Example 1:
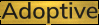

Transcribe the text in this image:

Adoptive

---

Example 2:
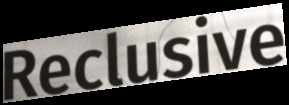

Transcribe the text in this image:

Reclusive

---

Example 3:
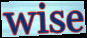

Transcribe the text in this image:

wise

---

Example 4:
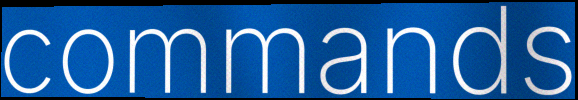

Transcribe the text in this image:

commands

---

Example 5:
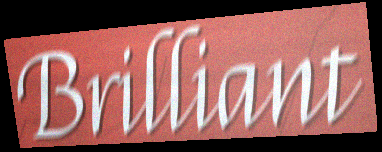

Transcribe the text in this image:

Brilliant